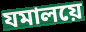
যমালয়ে